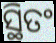
ସ୍ଥିତଂ